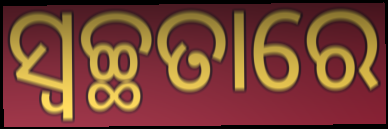
ସ୍ବଚ୍ଛତାରେ